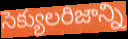
సెక్యులరిజాన్ని